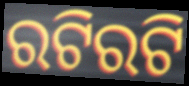
ରଟିରଟି